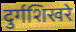
दुर्गशिखरे